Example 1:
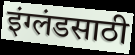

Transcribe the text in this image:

इंग्लंडसाठी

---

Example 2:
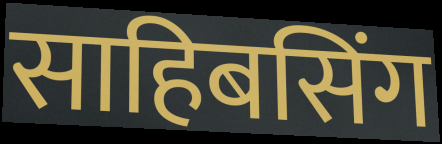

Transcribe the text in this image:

साहिबसिंग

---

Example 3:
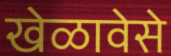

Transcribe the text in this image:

खेळावेसे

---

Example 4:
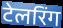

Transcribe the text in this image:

टेलरिंग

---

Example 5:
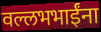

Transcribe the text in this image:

वल्लभभाईंना